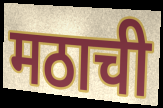
मठाची